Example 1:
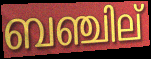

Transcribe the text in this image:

ബഞ്ചില്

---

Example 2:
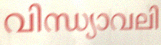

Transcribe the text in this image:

വിന്ധ്യാവലി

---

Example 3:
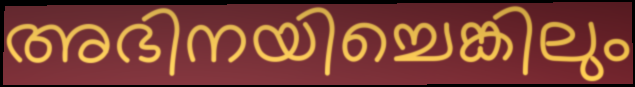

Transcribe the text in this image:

അഭിനയിച്ചെങ്കിലും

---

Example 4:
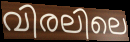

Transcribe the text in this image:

വിരലിലെ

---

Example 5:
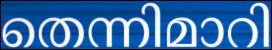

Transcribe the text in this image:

തെന്നിമാറി